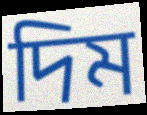
দিম